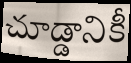
చూడ్డానికీ